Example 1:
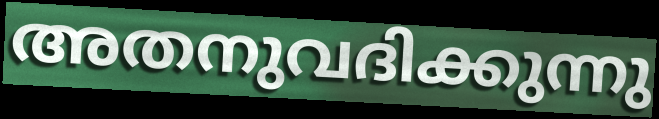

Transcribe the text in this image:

അതനുവദിക്കുന്നു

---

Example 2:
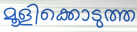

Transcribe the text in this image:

മൂളിക്കൊടുത്ത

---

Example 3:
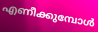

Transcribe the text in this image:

എണീക്കുമ്പോൾ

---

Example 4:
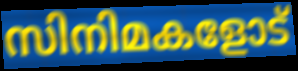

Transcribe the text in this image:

സിനിമകളോട്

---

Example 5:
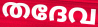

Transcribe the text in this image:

തദേവ